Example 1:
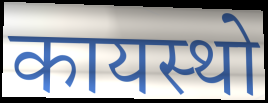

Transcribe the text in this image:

कायस्थो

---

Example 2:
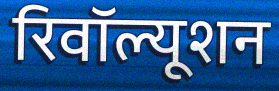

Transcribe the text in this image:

रिवॉल्यूशन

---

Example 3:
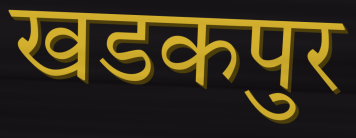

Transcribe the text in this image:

खडकपुर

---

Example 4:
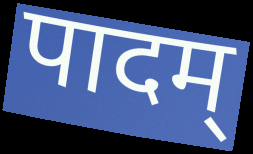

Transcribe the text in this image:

पादम्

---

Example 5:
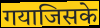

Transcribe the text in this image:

गयाजिसके